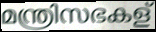
മന്ത്രിസഭകള്